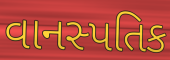
વાનસ્પતિક